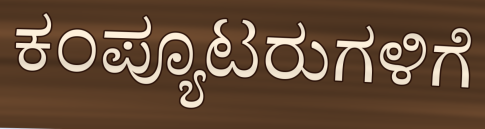
ಕಂಪ್ಯೂಟರುಗಳಿಗೆ